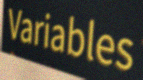
Variables